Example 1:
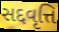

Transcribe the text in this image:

સદ્દવૃત્તિ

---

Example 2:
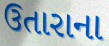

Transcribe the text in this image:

ઉતારાના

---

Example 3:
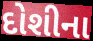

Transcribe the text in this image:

દોશીના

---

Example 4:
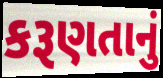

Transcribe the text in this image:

કરૂણતાનું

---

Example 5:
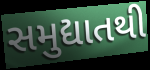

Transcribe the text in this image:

સમુદ્યાતથી